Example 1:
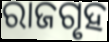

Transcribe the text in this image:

ରାଜଗୃହ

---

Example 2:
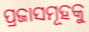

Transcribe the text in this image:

ପ୍ରଜାସମୂହକୁ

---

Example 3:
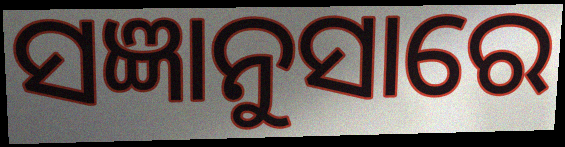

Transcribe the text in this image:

ସଜ୍ଞାନୁସାରେ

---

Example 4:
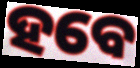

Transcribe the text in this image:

ହବେ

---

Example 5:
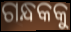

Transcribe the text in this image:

ଗନ୍ଧକକୁ